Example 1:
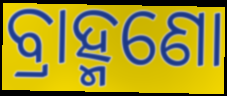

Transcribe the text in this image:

ବ୍ରାହ୍ମଣୋ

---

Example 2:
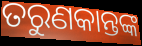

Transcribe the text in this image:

ତରୁଣକାନ୍ତଙ୍କ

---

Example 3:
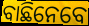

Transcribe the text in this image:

ବାଛିନେବେ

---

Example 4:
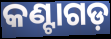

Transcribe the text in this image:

କଣ୍ଟାଗଡ଼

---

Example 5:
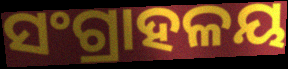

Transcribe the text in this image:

ସଂଗ୍ରାହଳୟ